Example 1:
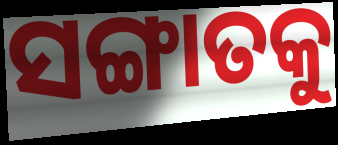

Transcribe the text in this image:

ସଙ୍ଗାତକୁ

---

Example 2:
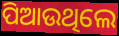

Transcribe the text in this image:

ପିଆଉଥିଲେ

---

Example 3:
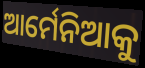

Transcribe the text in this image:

ଆର୍ମେନିଆକୁ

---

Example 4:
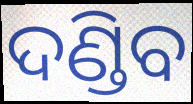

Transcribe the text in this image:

ଦଣ୍ଡିବ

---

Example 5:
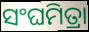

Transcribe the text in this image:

ସଂଘମିତ୍ରା